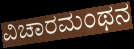
ವಿಚಾರಮಂಥನ